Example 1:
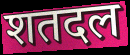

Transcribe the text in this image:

शतदल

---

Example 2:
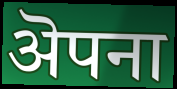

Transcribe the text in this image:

ऄपना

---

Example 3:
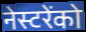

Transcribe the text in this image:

नेस्टरेंको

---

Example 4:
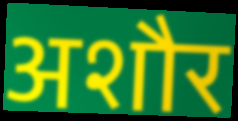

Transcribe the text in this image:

अशौर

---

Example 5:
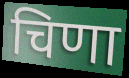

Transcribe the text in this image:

चिणा